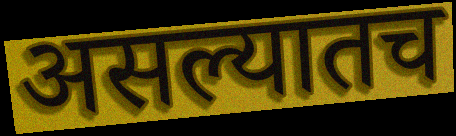
असल्यातच